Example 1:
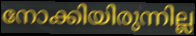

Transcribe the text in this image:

നോക്കിയിരുന്നില്ല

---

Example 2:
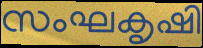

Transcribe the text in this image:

സംഘകൃഷി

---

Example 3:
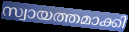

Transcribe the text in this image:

സ്വായത്തമാക്കി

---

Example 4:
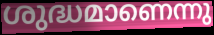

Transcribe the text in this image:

ശുദ്ധമാണെന്നു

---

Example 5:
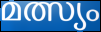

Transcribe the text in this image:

മത്സ്യം